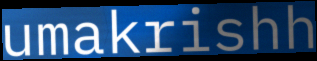
umakrishh